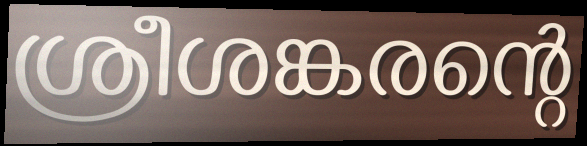
ശ്രീശങ്കരന്റെ